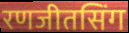
रणजीतसिंग